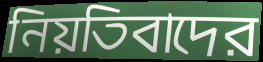
নিয়তিবাদের